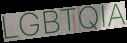
LGBTQIA